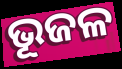
ଭୂଜଳ